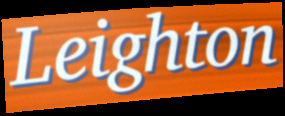
Leighton